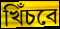
খিঁচবে